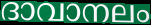
ദാവാനലം